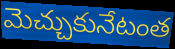
మెచ్చుకునేటంత